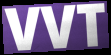
VVT